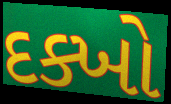
દક્ખો